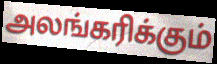
அலங்கரிக்கும்